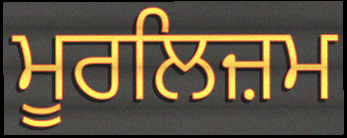
ਮੂਰਲਿਜ਼ਮ